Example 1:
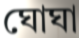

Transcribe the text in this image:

ঘোঘা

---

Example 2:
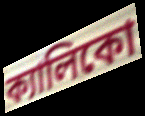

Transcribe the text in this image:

ক্যালিকো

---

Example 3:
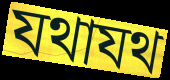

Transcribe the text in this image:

যথাযথ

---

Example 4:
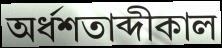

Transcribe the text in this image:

অর্ধশতাব্দীকাল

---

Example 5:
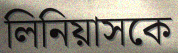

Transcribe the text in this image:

লিনিয়াসকে